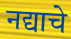
नद्याचे